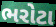
ભરોટા